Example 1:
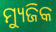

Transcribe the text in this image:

ମ୍ୟୁଜିକ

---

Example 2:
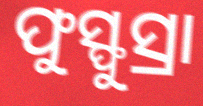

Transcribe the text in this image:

ଫୁସ୍ଫୁସ୍ରା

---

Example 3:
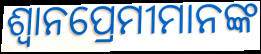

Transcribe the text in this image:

ଶ୍ଵାନପ୍ରେମୀମାନଙ୍କ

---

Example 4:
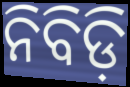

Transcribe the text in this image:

ନିବିଡ଼ି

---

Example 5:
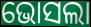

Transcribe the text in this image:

ଭୋସଲା